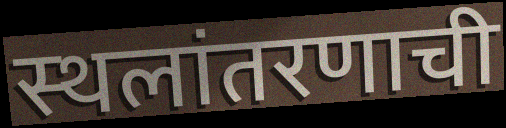
स्थलांतरणाची